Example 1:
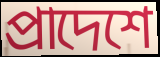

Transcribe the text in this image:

প্রাদেশে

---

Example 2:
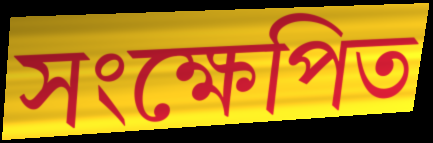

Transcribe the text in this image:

সংক্ষেপিত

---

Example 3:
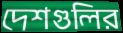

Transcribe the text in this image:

দেশগুলির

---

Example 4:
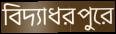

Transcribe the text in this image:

বিদ্যাধরপুরে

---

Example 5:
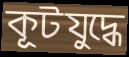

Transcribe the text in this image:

কূটযুদ্ধে